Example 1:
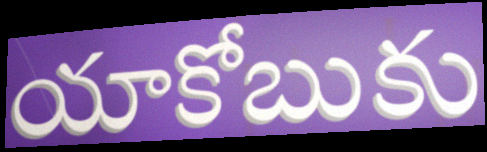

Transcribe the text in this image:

యాకోబుకు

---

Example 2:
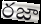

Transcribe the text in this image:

రజా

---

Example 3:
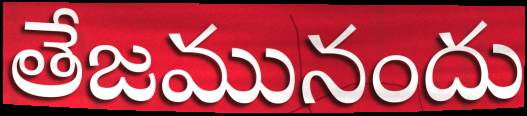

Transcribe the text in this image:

తేజమునందు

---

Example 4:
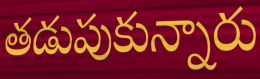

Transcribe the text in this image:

తడుపుకున్నారు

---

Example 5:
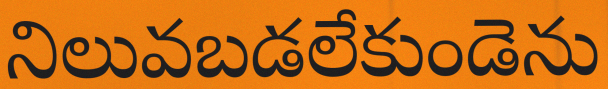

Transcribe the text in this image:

నిలువబడలేకుండెను